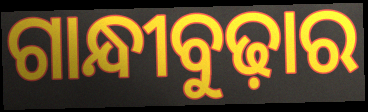
ଗାନ୍ଧୀବୁଢ଼ାର